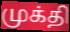
முக்தி